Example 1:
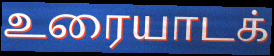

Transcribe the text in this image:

உரையாடக்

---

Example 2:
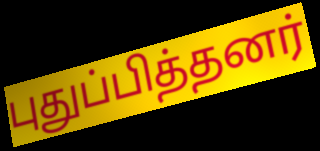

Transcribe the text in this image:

புதுப்பித்தனர்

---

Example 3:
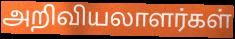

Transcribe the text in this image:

அறிவியலாளர்கள்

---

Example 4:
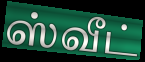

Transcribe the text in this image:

ஸ்வீட்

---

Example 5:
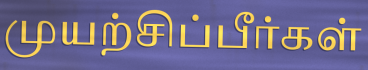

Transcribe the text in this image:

முயற்சிப்பீர்கள்